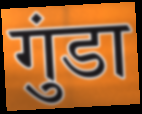
गुंडा